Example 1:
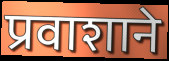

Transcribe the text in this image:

प्रवाशाने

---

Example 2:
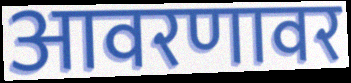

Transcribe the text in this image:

आवरणावर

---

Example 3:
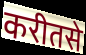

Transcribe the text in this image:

करीतसे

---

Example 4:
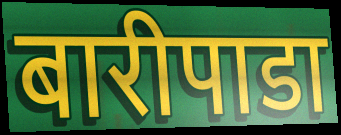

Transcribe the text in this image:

बारीपाडा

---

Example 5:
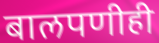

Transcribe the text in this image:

बालपणीही